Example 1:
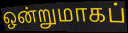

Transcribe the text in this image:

ஒன்றுமாகப்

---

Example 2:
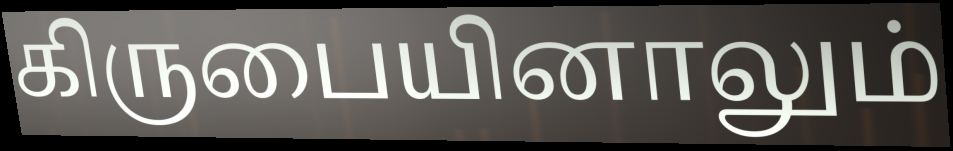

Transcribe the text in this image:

கிருபையினாலும்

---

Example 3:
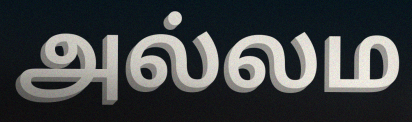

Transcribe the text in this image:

அல்லம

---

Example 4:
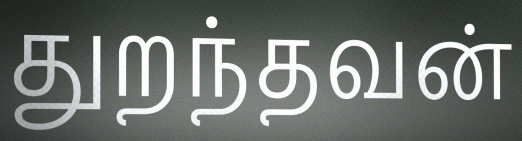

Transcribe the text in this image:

துறந்தவன்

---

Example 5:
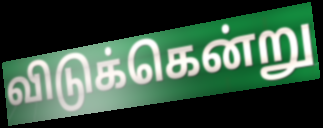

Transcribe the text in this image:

விடுக்கென்று